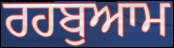
ਰਹਬੁਆਮ